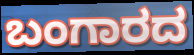
ಬಂಗಾರದ